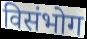
विसंभोग